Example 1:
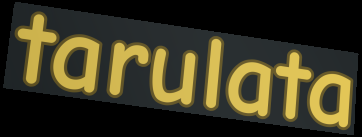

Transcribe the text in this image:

tarulata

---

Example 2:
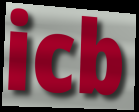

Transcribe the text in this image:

icb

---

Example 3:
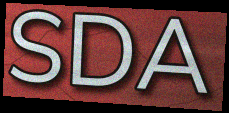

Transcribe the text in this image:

SDA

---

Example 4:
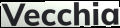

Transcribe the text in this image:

Vecchia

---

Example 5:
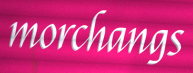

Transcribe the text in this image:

morchangs